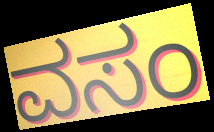
ವಸಂ